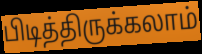
பிடித்திருக்கலாம்